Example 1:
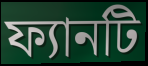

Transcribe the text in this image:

ফ্যানটি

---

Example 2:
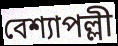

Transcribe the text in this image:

বেশ্যাপল্লী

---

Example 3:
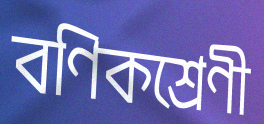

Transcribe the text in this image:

বণিকশ্রেণী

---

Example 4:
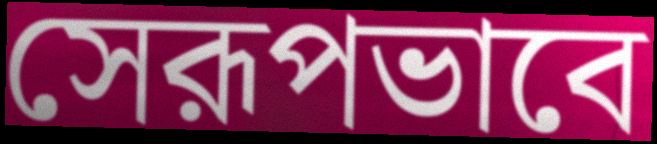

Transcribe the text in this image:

সেরূপভাবে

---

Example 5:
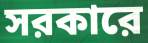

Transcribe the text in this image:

সরকারে